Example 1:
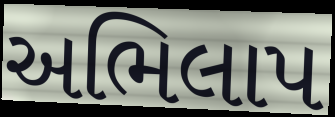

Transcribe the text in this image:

અભિલાપ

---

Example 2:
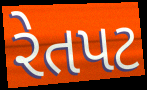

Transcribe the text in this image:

રેતપટ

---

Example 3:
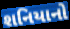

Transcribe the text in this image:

શનિયાનો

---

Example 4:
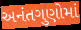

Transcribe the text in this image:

અનંતગુણોમાં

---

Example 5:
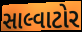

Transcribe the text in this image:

સાલ્વાટોર